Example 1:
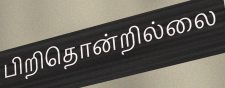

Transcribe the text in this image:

பிறிதொன்றில்லை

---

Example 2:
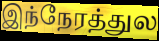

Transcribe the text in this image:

இந்நேரத்துல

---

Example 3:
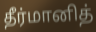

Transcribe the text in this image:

தீர்மானித்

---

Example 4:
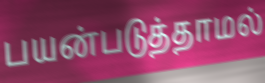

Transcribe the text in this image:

பயன்படுத்தாமல்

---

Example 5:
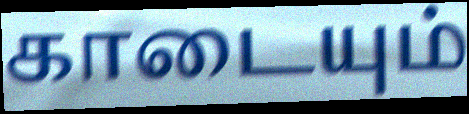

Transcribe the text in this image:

காடையும்